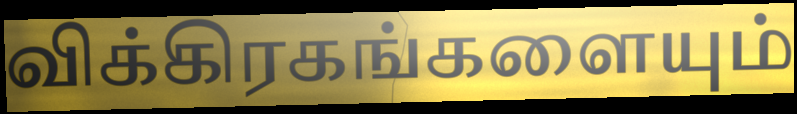
விக்கிரகங்களையும்